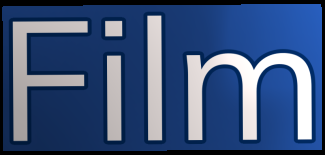
Film